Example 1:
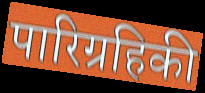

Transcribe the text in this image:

पारिग्रहिकी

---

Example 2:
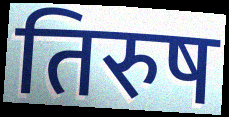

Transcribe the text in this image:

तिरुष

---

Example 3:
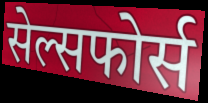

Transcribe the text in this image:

सेल्सफोर्स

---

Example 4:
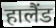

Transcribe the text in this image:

हालैंड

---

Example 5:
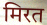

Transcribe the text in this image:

मिरत